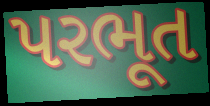
પરભૂત